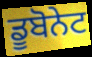
ਡੂਬੋਨੇਟ